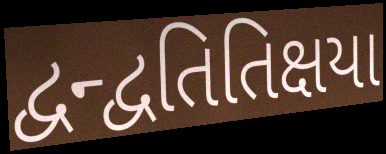
દ્વન્દ્વતિતિક્ષયા